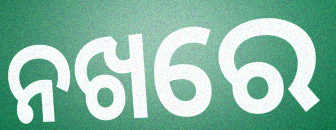
ନଖରେ